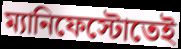
ম্যানিফেস্টোতেই